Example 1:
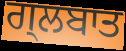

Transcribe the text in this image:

ਗ੍ਲਬਾਤ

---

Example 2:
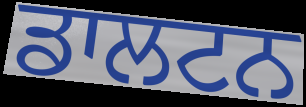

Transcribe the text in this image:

ਡਾਲਟਨ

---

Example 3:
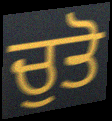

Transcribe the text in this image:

ਚੁਤੋ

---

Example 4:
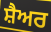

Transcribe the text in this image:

ਸ਼ੈਅਰ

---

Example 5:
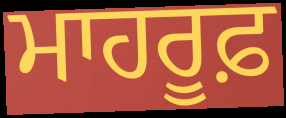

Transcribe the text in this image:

ਮਾਹਰੂਫ਼